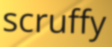
scruffy